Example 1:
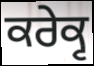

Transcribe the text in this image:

ਕਰੇਕ੍ਟ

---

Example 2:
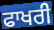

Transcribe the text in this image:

ਫਾਖਰੀ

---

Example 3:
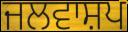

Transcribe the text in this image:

ਜਲਵਾਸ਼ਪ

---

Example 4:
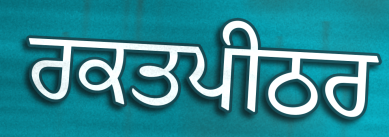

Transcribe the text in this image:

ਰਕਤਪੀਠਰ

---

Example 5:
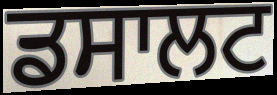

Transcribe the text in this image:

ਡਸਾਲਟ